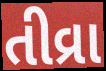
તીવ્રા